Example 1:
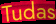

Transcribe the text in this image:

Tudas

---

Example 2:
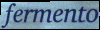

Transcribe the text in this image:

fermento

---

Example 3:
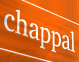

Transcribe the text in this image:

chappal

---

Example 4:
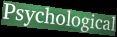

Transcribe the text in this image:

Psychological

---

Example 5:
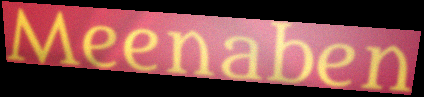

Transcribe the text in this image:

Meenaben